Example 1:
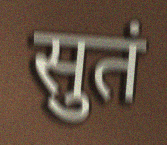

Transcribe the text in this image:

सुतं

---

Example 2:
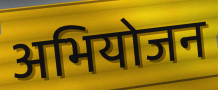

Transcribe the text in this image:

अभियोजन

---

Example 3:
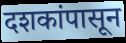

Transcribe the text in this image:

दशकांपासून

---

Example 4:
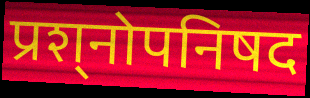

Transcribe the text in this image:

प्रश्नोपनिषद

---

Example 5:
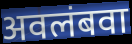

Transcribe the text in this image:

अवलंबवा